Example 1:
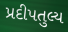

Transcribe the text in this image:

પ્રદીપતુલ્ય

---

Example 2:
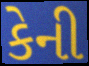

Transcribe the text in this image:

કેની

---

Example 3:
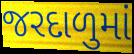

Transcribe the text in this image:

જરદાળુમાં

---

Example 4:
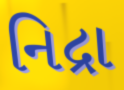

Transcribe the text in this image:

નિદ્રા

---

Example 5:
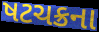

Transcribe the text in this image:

ષટચક્રના